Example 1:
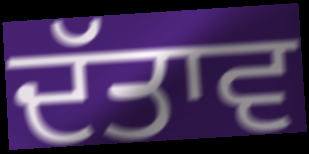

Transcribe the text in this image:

ਦੱਤਾਵ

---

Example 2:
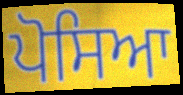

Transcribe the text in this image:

ਪੋਸਿਆ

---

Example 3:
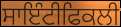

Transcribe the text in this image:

ਸਾਇੰਟੀਫਿਕਲੀ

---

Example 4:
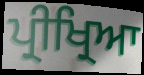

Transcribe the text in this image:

ਪ੍ਰੀਖ੍ਰਿਆ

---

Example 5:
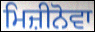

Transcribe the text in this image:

ਮਿਜ਼ੀਨੋਵਾ